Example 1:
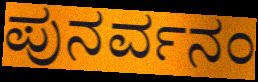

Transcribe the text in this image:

ಪುನರ್ವನಂ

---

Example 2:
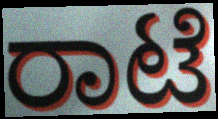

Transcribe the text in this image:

ರಾಟೆ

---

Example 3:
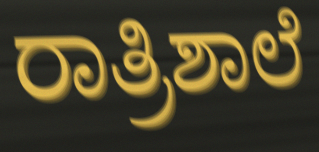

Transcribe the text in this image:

ರಾತ್ರಿಶಾಲೆ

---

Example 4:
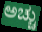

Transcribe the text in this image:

ಅಚ್ಚು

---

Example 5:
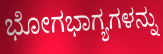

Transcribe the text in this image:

ಭೋಗಭಾಗ್ಯಗಳನ್ನು